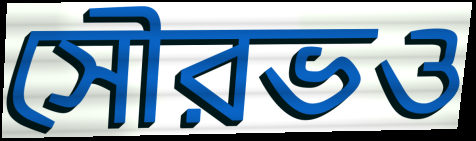
সৌরভও